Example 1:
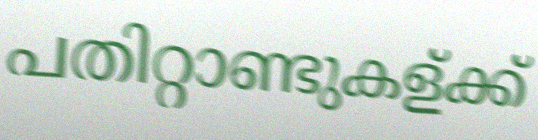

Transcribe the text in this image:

പതിറ്റാണ്ടുകള്ക്ക്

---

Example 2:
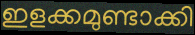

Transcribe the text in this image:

ഇളക്കമുണ്ടാക്കി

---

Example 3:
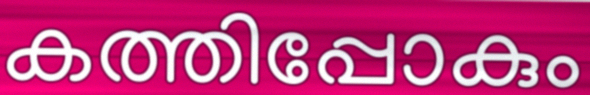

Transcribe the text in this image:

കത്തിപ്പോകും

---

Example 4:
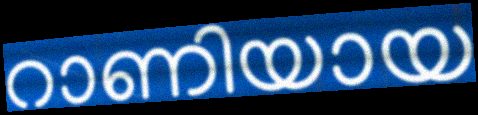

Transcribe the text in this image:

റാണിയായ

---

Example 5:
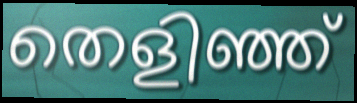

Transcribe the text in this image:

തെളിഞ്ഞ്